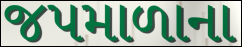
જપમાળાના